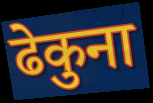
ढेकुना